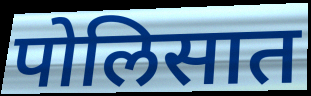
पोलिसात